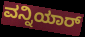
ವನ್ನಿಯಾರ್